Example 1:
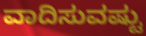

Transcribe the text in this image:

ವಾದಿಸುವಷ್ಟು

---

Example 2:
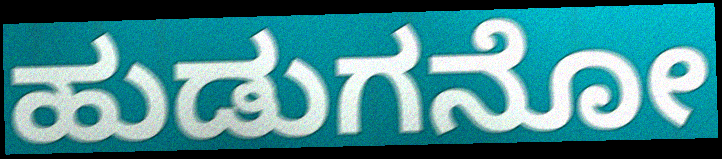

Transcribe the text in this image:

ಹುಡುಗನೋ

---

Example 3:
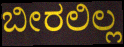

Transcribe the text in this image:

ಬೀರಲಿಲ್ಲ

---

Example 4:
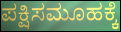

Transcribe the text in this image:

ಪಕ್ಷಿಸಮೂಹಕ್ಕೆ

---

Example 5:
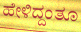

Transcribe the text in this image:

ಹೇಳಿದ್ದಂತೂ